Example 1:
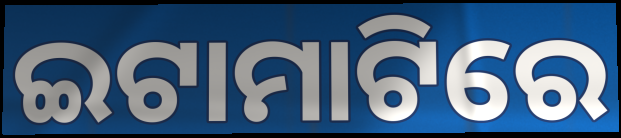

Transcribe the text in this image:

ଇଟାମାଟିରେ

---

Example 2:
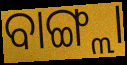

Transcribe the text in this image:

ବାଙ୍ଗ୍ଲା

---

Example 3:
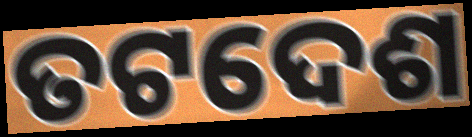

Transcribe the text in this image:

ତଟଦେଶ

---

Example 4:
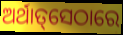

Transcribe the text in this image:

ଅର୍ଥାତ୍‌ସେଠାରେ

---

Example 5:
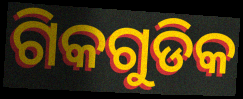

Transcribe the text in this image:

ଗିକଗୁଡିକ